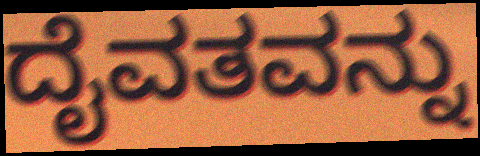
ದೈವತವನ್ನು